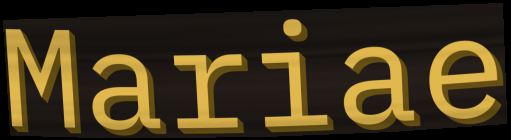
Mariae